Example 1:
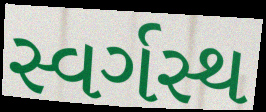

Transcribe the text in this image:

સ્વર્ગસ્થ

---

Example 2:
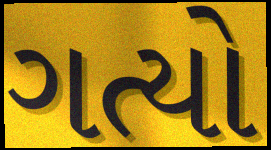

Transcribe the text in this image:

ગત્યો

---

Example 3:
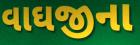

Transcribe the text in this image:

વાઘજીના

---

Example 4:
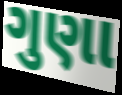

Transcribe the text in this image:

ગુણા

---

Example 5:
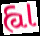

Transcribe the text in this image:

હ્વા